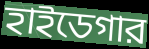
হাইডেগার